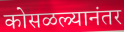
कोसळल्यानंतर